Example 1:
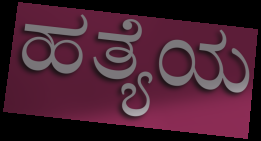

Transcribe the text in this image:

ಹತ್ಯೆಯ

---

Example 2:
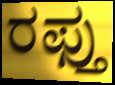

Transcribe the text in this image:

ರಫ್ತು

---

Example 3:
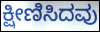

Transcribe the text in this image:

ಕ್ಷೀಣಿಸಿದವು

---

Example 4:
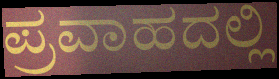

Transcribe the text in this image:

ಪ್ರವಾಹದಲ್ಲಿ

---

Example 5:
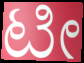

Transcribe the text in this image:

ಟೀ